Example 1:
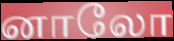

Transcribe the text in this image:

னாலோ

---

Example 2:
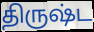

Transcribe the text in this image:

திருஷ்ட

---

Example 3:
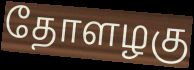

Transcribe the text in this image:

தோளழகு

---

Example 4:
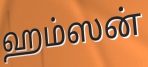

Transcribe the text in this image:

ஹம்ஸன்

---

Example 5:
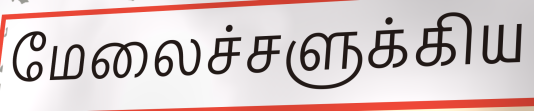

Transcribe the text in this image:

மேலைச்சளுக்கிய